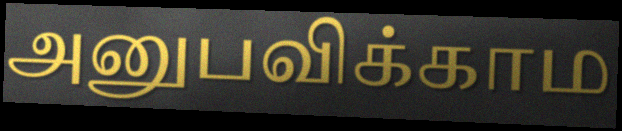
அனுபவிக்காம